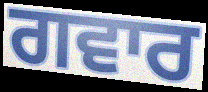
ਗਵਾਰ